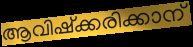
ആവിഷ്ക്കരിക്കാന്